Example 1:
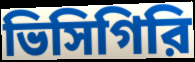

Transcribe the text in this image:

ভিসিগিরি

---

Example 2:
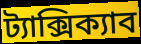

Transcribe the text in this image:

ট্যাক্সিক্যাব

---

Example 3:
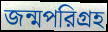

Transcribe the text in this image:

জন্মপরিগ্রহ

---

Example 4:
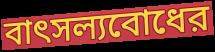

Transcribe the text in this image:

বাৎসল্যবোধের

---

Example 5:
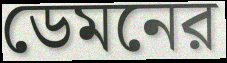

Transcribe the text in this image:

ডেমনের